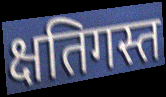
क्षतिगस्त